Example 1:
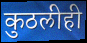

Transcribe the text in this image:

कुठलीही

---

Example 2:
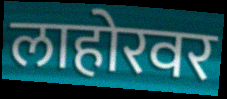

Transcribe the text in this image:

लाहोरवर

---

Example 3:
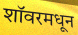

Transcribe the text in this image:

शॉवरमधून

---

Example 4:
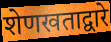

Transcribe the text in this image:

शेणखताद्वारे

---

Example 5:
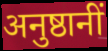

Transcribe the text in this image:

अनुष्ठानीं